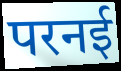
परनई